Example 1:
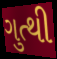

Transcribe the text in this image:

ગુત્થી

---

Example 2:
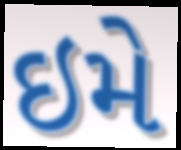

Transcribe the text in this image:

ઇમે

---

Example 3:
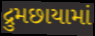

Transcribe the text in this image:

દ્રુમછાયામાં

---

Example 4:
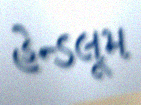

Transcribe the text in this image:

હેન્ડલૂમ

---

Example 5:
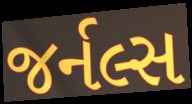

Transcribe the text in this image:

જર્નલ્સ